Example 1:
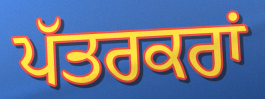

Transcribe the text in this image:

ਪੱਤਰਕਰਾਂ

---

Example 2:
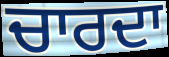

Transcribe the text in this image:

ਚਾਰਦਾ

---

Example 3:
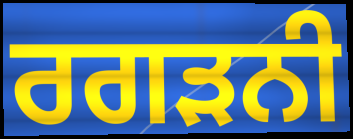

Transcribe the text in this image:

ਰਗੜਨੀ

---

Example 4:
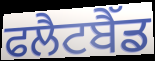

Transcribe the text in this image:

ਫਲੈਟਬੈੱਡ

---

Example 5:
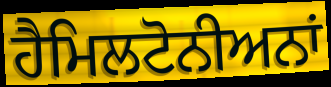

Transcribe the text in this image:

ਹੈਮਿਲਟੋਨੀਅਨਾਂ